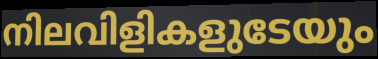
നിലവിളികളുടേയും